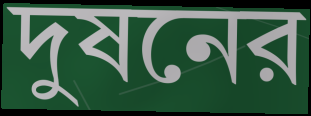
দুষনের